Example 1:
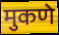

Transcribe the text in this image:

मुकणे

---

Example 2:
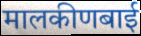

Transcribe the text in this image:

मालकीणबाई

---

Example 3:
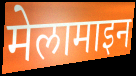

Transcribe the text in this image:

मेलामाइन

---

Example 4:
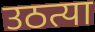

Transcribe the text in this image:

उठत्या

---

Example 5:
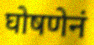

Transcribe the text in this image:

घोषणेनं